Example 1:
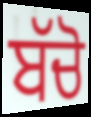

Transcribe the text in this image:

ਬੱਚੋ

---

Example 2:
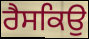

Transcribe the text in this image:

ਰੈਸਕਿਉ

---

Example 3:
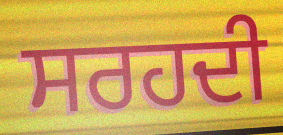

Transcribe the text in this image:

ਸਰਹਦੀ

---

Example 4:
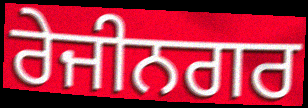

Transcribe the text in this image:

ਰੇਜੀਨਗਰ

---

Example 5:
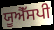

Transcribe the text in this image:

ਯੂਐੱਸਪੀ